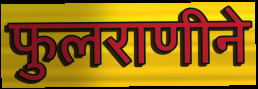
फुलराणीने